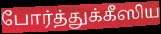
போர்த்துக்கீஸிய